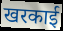
खरकाई